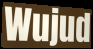
Wujud